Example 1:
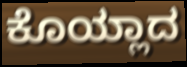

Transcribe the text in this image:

ಕೊಯ್ಲಾದ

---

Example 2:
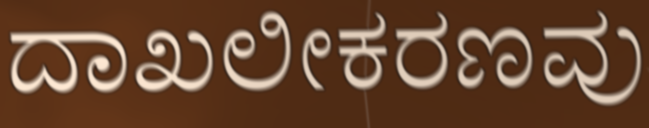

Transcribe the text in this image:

ದಾಖಲೀಕರಣವು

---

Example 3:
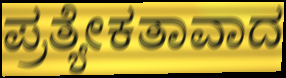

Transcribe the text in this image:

ಪ್ರತ್ಯೇಕತಾವಾದ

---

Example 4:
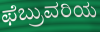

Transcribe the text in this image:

ಫೆಬ್ರುವರಿಯ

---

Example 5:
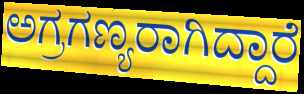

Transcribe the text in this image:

ಅಗ್ರಗಣ್ಯರಾಗಿದ್ದಾರೆ